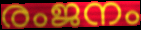
രംജനം